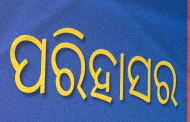
ପରିହାସର